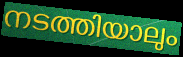
നടത്തിയാലും